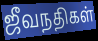
ஜீவநதிகள்